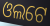
ଓଲଟେ